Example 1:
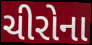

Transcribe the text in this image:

ચીરોના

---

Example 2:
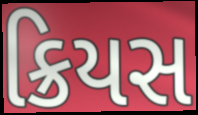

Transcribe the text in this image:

ક્રિયસ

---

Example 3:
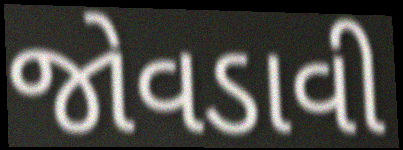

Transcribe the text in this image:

જોવડાવી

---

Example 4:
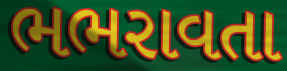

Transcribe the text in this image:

ભભરાવતા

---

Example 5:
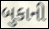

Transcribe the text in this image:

બુકાની